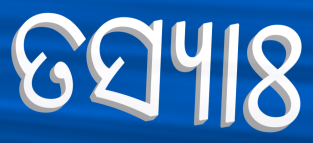
ତସ୍ୟାଃ